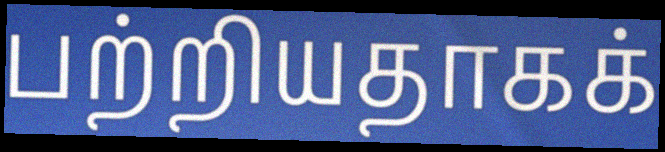
பற்றியதாகக்